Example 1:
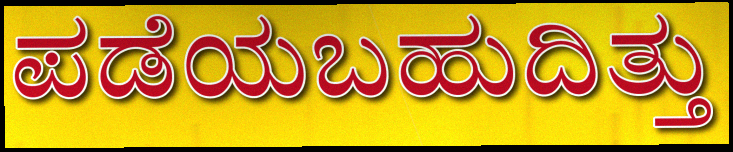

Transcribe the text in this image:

ಪಡೆಯಬಹುದಿತ್ತು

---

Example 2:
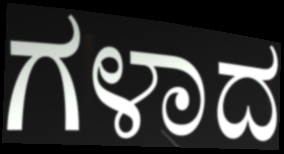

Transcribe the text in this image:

ಗಳಾದ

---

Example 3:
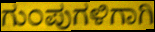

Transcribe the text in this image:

ಗುಂಪುಗಳಿಗಾಗಿ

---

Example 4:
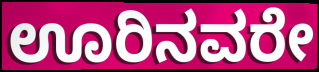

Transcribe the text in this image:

ಊರಿನವರೇ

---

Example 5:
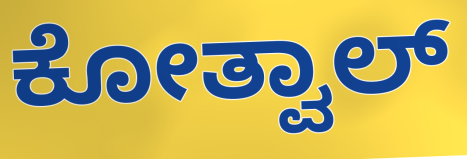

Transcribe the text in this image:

ಕೋತ್ವಾಲ್